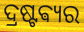
ଦ୍ରଷ୍ଟଵ୍ୟର